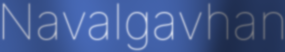
Navalgavhan